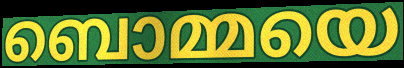
ബൊമ്മയെ